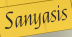
Sanyasis